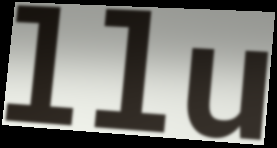
llu